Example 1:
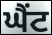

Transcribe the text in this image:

ਘੈਂਟ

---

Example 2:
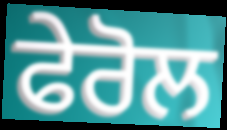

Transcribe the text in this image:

ਫੇਰੋਲ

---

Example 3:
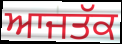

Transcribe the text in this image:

ਆਜਤੱਕ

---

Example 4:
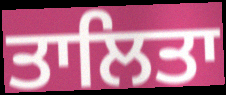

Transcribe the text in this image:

ਤਾਲਿਤਾ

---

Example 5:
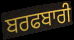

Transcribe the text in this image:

ਬਰਫਬਾਰੀ